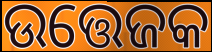
ଉତ୍ତେଜକ